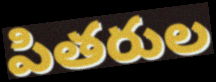
పితరుల